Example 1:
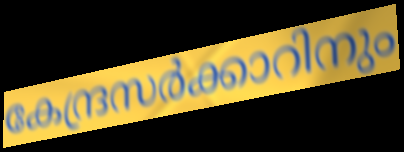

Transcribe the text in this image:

കേന്ദ്രസർക്കാറിനും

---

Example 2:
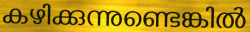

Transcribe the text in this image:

കഴിക്കുന്നുണ്ടെങ്കിൽ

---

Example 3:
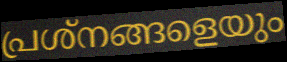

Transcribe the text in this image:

പ്രശ്നങ്ങളെയും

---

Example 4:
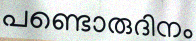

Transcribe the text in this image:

പണ്ടൊരുദിനം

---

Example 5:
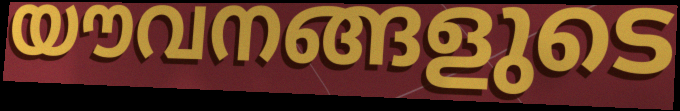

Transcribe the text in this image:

യൗവനങ്ങളുടെ